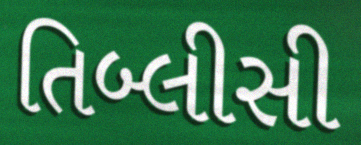
તિબ્લીસી